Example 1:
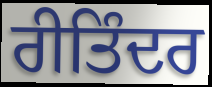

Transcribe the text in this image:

ਰੀਤਿੰਦਰ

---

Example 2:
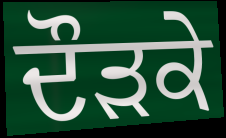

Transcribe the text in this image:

ਦੌੜਕੇ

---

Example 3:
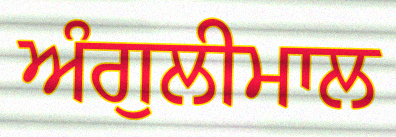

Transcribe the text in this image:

ਅੰਗੁਲੀਮਾਲ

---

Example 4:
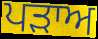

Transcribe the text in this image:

ਪਡ਼ਾਅ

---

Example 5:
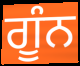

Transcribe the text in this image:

ਗੂੰਨ